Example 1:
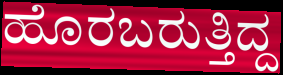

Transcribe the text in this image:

ಹೊರಬರುತ್ತಿದ್ದ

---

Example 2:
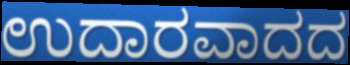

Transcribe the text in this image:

ಉದಾರವಾದದ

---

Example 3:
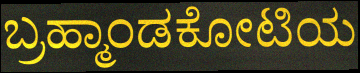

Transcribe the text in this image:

ಬ್ರಹ್ಮಾಂಡಕೋಟಿಯ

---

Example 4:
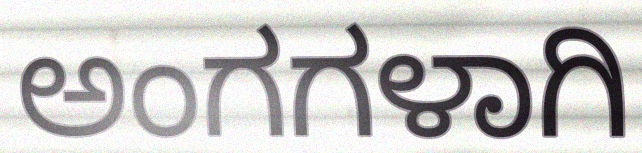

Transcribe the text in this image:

ಅಂಗಗಳಾಗಿ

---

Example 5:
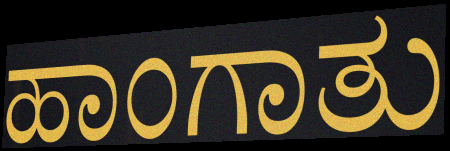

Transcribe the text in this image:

ಹಾಂಗಾತು